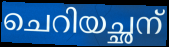
ചെറിയച്ഛന്